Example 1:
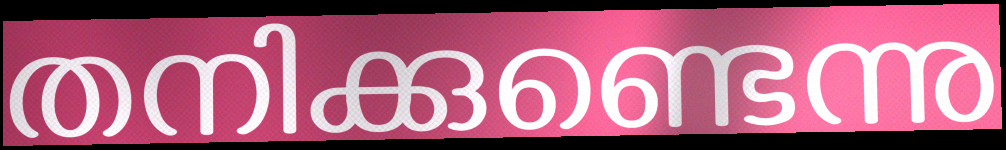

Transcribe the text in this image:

തനിക്കുണ്ടെന്നു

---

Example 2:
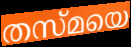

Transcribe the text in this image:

തസ്മയെ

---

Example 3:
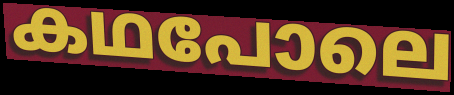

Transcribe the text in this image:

കഥപോലെ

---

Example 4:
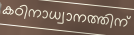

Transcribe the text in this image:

കഠിനാധ്വാനത്തിന്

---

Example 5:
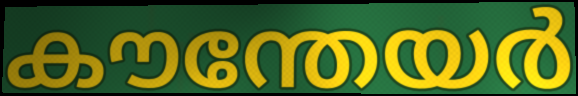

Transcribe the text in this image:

കൗന്തേയർ